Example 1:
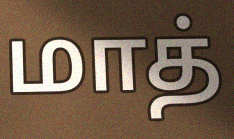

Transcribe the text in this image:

மாத்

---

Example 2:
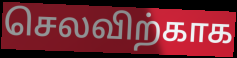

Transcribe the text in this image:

செலவிற்காக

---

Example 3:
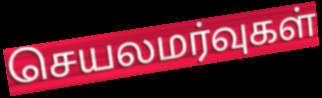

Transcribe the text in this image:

செயலமர்வுகள்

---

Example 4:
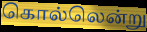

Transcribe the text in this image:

கொல்லென்று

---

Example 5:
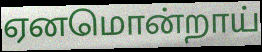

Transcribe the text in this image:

ஏனமொன்றாய்